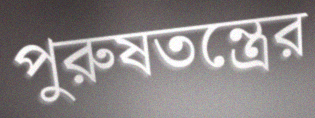
পুরুষতন্ত্রের